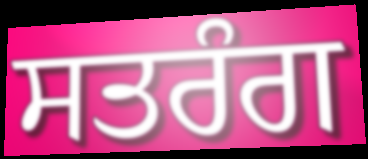
ਸਤਰੰਗ